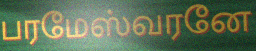
பரமேஸ்வரனே